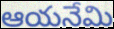
ఆయనేమి